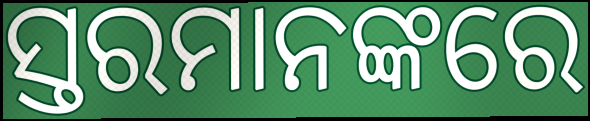
ସ୍ତରମାନଙ୍କରେ